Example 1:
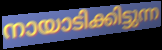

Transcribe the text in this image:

നായാടിക്കിട്ടുന്ന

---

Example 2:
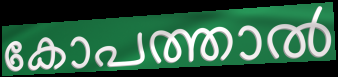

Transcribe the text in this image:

കോപത്താൽ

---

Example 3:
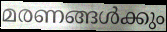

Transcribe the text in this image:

മരണങ്ങൾക്കും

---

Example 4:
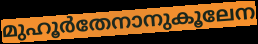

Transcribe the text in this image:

മുഹൂർതേനാനുകൂലേന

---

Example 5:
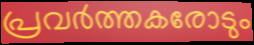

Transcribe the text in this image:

പ്രവർത്തകരോടും